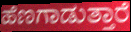
ಹೆಣಗಾಡುತ್ತಾರೆ